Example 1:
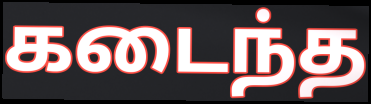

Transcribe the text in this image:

கடைந்த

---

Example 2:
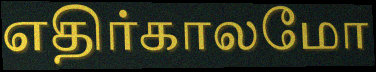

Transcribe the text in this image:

எதிர்காலமோ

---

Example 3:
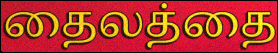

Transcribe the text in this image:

தைலத்தை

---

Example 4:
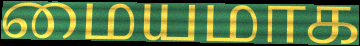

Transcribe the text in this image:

மையமாக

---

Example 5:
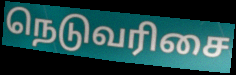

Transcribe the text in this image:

நெடுவரிசை